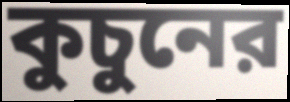
কুচুনের